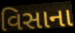
વિસાના